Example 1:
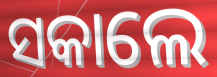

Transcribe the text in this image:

ସକାଲେ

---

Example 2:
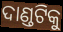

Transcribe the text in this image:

ଦାଣ୍ଡଟିକୁ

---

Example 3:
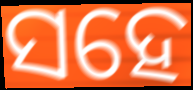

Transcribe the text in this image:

ସହେ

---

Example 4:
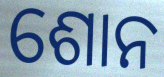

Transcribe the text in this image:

ଶୋନ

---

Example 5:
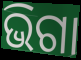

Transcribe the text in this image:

ଭିଗା